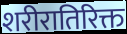
शरीरातिरिक्त